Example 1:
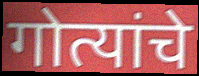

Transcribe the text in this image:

गोत्यांचे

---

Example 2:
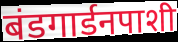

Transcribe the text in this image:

बंडगार्डनपाशी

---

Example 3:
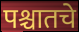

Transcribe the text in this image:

पश्चातचे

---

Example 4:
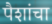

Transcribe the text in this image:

पैशांचा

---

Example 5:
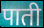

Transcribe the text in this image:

पाती